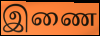
இணை